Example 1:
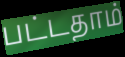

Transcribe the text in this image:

பட்டதாம்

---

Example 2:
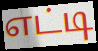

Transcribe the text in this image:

எட்டி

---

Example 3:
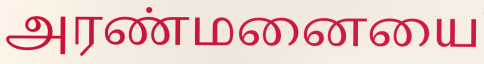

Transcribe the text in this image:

அரண்மனையை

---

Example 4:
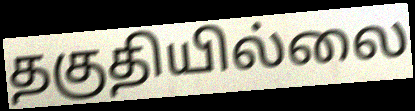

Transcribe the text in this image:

தகுதியில்லை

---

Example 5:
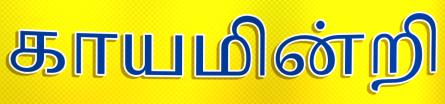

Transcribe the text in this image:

காயமின்றி